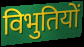
विभुतियों